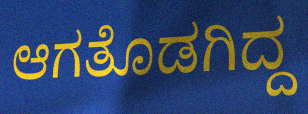
ಆಗತೊಡಗಿದ್ದ